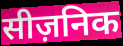
सीज़निक